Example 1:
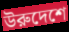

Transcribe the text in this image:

উরুদেশে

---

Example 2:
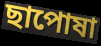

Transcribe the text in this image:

ছাপোষা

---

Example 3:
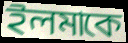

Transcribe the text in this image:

ইলমাকে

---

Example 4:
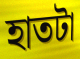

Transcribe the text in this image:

হাতটা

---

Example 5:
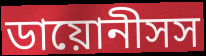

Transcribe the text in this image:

ডায়োনীসস